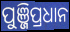
ପୁଞ୍ଜିପ୍ରଧାନ